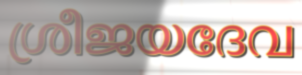
ശ്രീജയദേവ